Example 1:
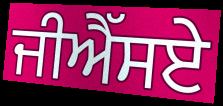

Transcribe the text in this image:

ਜੀਐੱਸਏ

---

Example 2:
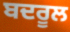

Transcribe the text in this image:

ਬਦਰੂਲ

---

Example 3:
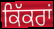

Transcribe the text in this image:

ਕਿੱਕਰਾਂ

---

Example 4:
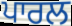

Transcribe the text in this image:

ਪਾਰਲ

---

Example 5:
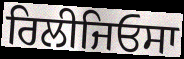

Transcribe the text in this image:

ਰਿਲੀਜਿਓਸਾ